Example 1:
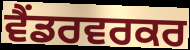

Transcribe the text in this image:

ਵੈਂਡਰਵਰਕਰ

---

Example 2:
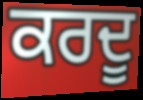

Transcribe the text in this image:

ਕਰਦੂ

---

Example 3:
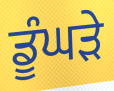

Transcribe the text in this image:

ਡੂੰਘੜੇ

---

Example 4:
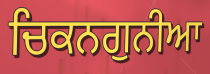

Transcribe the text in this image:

ਚਿਕਨਗੁਨੀਆ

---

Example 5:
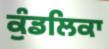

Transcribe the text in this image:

ਕੁੰਡਲਿਕਾ